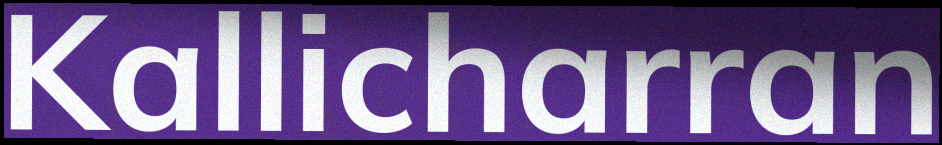
Kallicharran